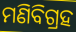
ମଣିବିଗ୍ରହ